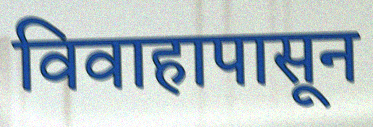
विवाहापासून